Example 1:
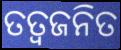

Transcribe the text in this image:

ତତ୍ଵଜନିତ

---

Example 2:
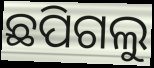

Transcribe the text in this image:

ଛପିଗଲୁ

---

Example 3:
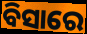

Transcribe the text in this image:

ବିସାରେ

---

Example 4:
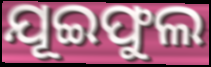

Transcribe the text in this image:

ଯୂଇଫୁଲ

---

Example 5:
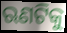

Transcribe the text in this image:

ଋଣଟିକୁ